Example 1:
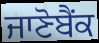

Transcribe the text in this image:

ਜਾਣੋਬੈਂਕ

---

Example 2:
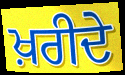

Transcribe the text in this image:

ਖ਼ਰੀਦੇ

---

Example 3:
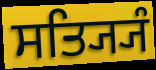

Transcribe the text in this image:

ਸਤ੍ਯ੍ਯਿੰ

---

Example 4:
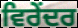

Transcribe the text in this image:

ਵਿਰੇਂਦਰ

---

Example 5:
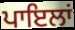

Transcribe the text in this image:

ਪਾਇਲਾਂ